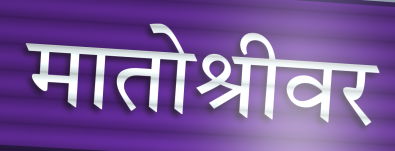
मातोश्रीवर